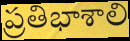
ప్రతిభాశాలి